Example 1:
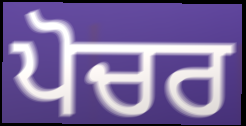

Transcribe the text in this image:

ਪੋਚਰ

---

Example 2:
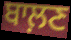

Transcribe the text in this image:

ਬਾਲ਼ਣ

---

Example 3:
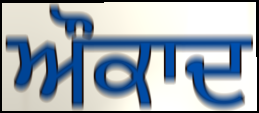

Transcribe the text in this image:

ਔਕਾਦ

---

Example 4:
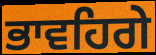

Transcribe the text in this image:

ਭਾਵਹਿਗੇ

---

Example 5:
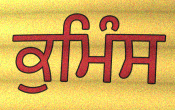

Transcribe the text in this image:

ਕੁਮਿੰਸ